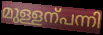
മുള്ളന്പന്നി